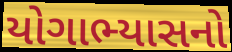
યોગાભ્યાસનો